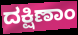
ದಕ್ಷಿಣಾಂ